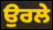
ਉਰਲੇ